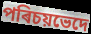
পৰিচয়ভেদে